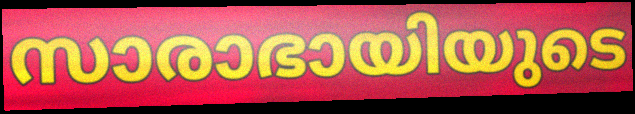
സാരാഭായിയുടെ